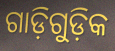
ଗାଡ଼ିଗୁଡ଼ିକ